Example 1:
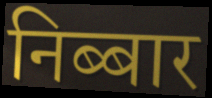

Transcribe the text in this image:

निब्बार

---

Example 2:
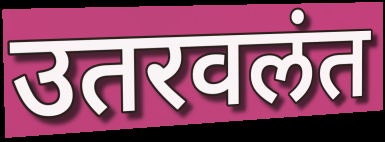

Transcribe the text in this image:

उतरवलंत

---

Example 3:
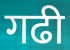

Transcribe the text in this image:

गढी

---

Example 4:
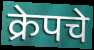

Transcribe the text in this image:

क्रेपचे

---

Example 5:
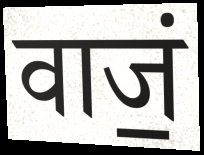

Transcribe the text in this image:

वाजं॒